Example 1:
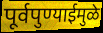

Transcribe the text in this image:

पूर्वपुण्याईमुळे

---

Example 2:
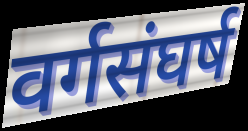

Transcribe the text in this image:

वर्गसंघर्ष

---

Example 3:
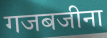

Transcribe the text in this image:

गजबजीना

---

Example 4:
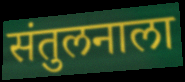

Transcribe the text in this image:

संतुलनाला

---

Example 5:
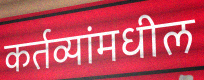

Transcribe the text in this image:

कर्तव्यांमधील